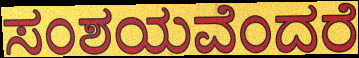
ಸಂಶಯವೆಂದರೆ